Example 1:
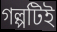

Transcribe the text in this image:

গল্পটিই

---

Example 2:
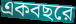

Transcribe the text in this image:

একবছরে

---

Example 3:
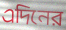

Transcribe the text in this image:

এদিনের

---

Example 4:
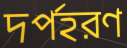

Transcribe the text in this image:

দর্পহরণ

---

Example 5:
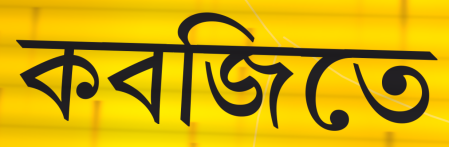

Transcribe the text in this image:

কবজিতে